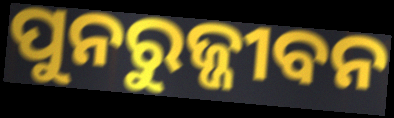
ପୁନରୁଜ୍ଜୀବନ